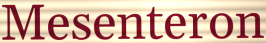
Mesenteron